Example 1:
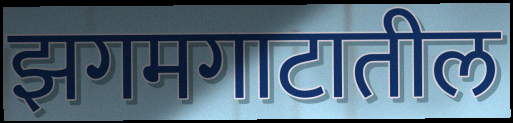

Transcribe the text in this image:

झगमगाटातील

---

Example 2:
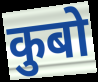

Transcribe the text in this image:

कुबो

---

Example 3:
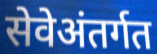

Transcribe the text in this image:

सेवेअंतर्गत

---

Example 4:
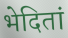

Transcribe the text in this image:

भेदितां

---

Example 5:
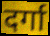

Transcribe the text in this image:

दर्गा